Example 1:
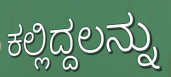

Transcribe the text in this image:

ಕಲ್ಲಿದ್ದಲನ್ನು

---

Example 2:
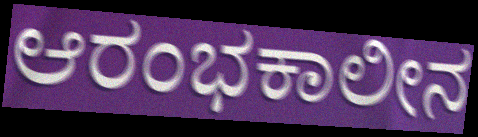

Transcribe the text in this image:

ಆರಂಭಕಾಲೀನ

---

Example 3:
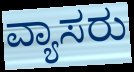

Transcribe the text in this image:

ವ್ಯಾಸರು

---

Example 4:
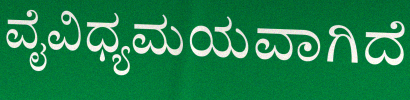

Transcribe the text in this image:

ವೈವಿಧ್ಯಮಯವಾಗಿದೆ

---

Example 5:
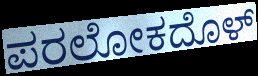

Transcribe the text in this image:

ಪರಲೋಕದೊಳ್